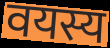
वयस्य